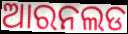
ଆରନଲଡ